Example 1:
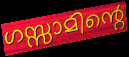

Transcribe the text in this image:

ഗസ്സാമിന്റെ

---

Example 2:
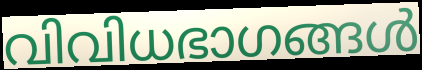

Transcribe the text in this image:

വിവിധഭാഗങ്ങൾ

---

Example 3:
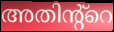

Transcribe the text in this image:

അതിന്റ്റെ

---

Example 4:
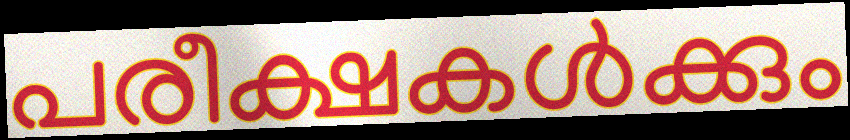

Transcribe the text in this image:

പരീക്ഷകൾക്കും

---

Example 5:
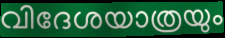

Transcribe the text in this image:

വിദേശയാത്രയും